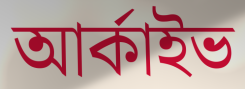
আৰ্কাইভ